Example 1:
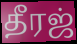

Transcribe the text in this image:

தீரஜ்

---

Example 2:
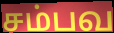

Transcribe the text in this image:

சம்பவ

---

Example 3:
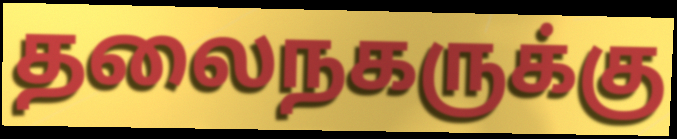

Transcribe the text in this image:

தலைநகருக்கு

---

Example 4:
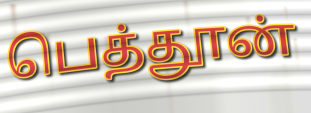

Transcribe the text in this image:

பெத்தூன்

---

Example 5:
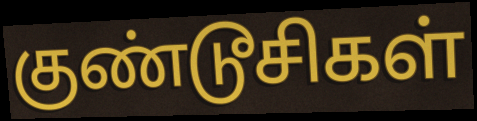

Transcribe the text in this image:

குண்டூசிகள்